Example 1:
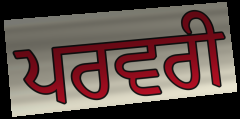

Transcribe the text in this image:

ਪਰਵਰੀ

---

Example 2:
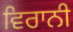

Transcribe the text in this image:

ਵਿਰਾਨੀ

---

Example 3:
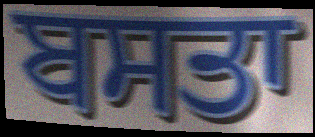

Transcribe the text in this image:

ਬਸਤਾ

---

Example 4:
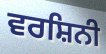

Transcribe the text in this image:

ਵਰਸ਼ਿਨੀ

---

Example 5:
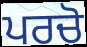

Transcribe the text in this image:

ਪਰਚੋ